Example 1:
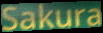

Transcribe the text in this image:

Sakura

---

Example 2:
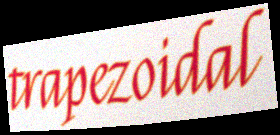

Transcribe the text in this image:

trapezoidal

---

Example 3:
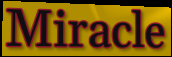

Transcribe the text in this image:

Miracle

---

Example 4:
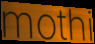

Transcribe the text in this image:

mothi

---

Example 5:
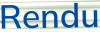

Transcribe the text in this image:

Rendu